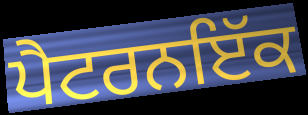
ਪੈਟਰਨਇੱਕ